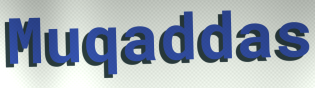
Muqaddas